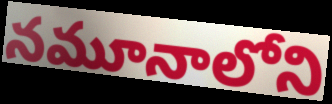
నమూనాలోని